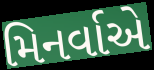
મિનર્વાએ